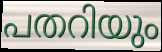
പതറിയും